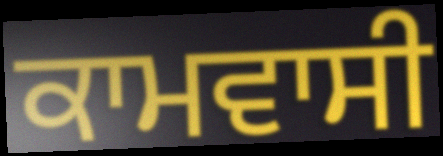
ਕਾਮਵਾਸੀ